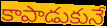
కాపాడుకునే